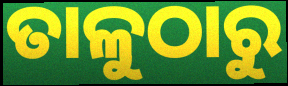
ତାଳୁଠାରୁ